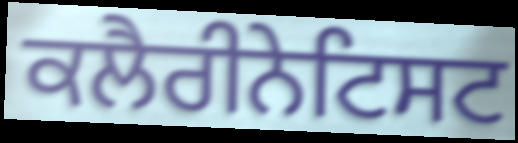
ਕਲੈਰੀਨੇਟਿਸਟ